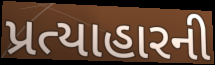
પ્રત્યાહારની